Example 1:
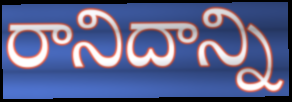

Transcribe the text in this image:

రానిదాన్ని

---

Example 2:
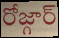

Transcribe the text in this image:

రోజ్గార్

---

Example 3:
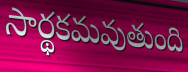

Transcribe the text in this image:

సార్థకమవుతుంది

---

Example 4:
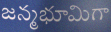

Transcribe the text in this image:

జన్మభూమిగా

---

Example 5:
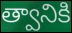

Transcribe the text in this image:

త్వానికి